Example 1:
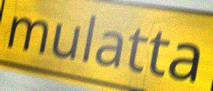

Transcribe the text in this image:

mulatta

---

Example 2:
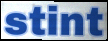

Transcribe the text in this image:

stint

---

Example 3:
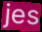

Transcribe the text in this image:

jes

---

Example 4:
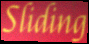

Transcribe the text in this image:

Sliding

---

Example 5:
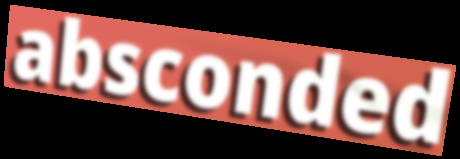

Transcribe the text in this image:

absconded